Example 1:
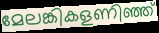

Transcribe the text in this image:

മേലങ്കികളണിഞ്ഞ്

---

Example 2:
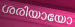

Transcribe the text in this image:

ശരിയായോ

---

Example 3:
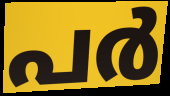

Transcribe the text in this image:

പർ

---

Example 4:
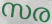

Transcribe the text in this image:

സര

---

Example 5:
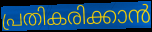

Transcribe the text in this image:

പ്രതികരിക്കാൻ